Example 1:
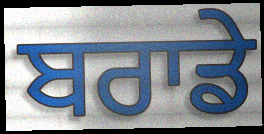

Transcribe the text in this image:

ਬਰਾਡੇ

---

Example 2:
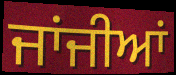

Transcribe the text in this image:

ਜਾਂਜੀਆਂ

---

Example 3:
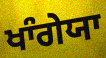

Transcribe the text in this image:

ਖਾੰਗੇਯਾ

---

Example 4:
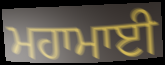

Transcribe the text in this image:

ਮਹਾਮਾਈ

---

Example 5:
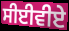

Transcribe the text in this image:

ਸੀਈਵੀਏ